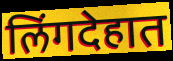
लिंगदेहात